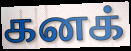
கனக்